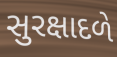
સુરક્ષાદળે